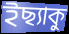
ইছ্যাকু